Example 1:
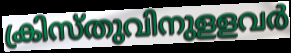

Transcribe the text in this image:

ക്രിസ്തുവിനുളളവർ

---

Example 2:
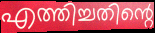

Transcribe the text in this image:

എത്തിച്ചതിന്റെ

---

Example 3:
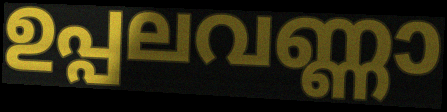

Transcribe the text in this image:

ഉപ്പലവണ്ണാ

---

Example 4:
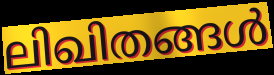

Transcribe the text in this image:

ലിഖിതങ്ങൾ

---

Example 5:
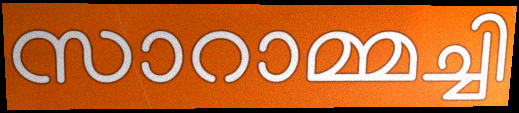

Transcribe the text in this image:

സാറാമ്മച്ചി